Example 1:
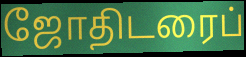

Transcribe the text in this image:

ஜோதிடரைப்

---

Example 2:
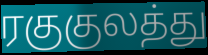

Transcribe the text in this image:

ரகுகுலத்து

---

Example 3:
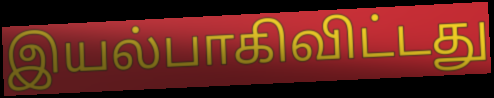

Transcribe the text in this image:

இயல்பாகிவிட்டது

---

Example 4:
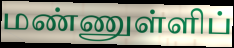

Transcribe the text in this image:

மண்ணுள்ளிப்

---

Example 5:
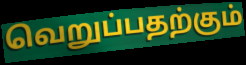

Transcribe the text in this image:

வெறுப்பதற்கும்